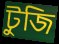
টুজি